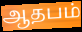
ஆதபம்